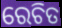
ରେଚିତ